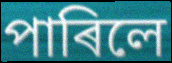
পাৰিলে